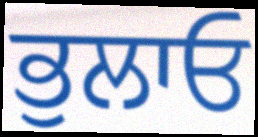
ਭੁਲਾਓ